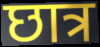
छात्र